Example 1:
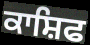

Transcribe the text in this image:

ਕਾਸ਼ਿਫ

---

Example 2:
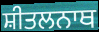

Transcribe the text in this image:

ਸ਼ੀਤਲਨਾਥ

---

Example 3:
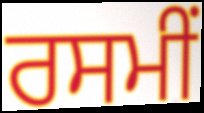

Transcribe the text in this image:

ਰਸਮੀਂ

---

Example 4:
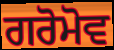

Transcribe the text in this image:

ਗਰੋਮੋਵ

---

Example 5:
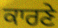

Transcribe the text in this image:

ਕਾਰਣੇ